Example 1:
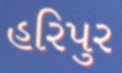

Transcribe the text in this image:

હરિપુર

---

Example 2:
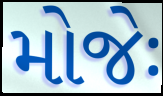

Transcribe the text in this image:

મોજેઃ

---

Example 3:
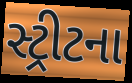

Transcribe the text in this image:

સ્ટ્રીટના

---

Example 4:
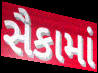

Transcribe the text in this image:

સૈકામાં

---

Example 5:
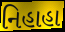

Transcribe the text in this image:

નિહાહા